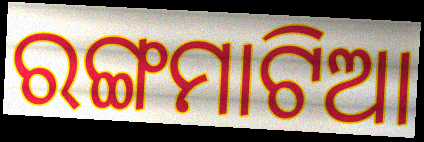
ରଙ୍ଗମାଟିଆ